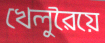
খেলুৱৈয়ে